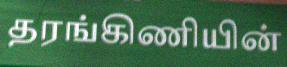
தரங்கிணியின்